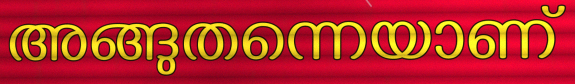
അങ്ങുതന്നെയാണ്